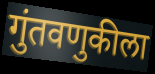
गुंतवणुकीला